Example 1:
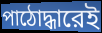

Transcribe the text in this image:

পাঠোদ্ধারেই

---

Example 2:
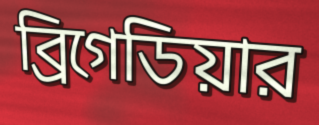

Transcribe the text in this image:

ব্রিগেডিয়ার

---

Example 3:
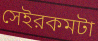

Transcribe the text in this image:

সেইরকমটা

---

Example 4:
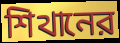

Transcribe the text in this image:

শিথানের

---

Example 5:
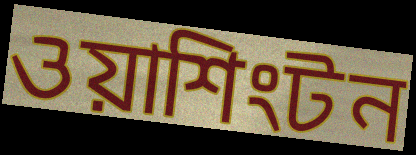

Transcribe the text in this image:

ওয়াশিংটন